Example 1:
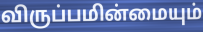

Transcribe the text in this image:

விருப்பமின்மையும்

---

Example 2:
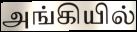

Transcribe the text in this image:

அங்கியில்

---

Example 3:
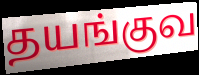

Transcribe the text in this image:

தயங்குவ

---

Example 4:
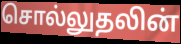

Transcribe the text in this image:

சொல்லுதலின்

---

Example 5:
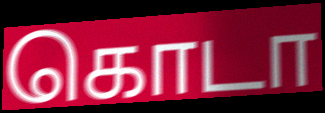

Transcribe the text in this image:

கொடா